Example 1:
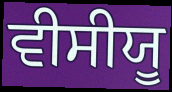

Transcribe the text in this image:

ਵੀਸੀਯੂ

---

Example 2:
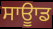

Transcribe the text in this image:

ਸਾਊਾਡ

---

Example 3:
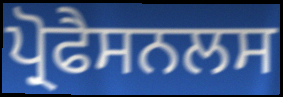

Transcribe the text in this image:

ਪ੍ਰੋਫੈਸਨਲਸ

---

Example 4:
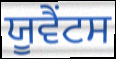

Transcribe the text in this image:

ਯੂਵੈਂਟਸ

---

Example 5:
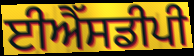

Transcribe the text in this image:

ਈਐੱਸਡੀਪੀ